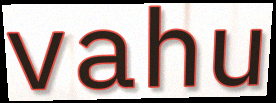
vahu